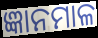
ଜ୍ଞାନମାଳ